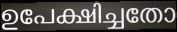
ഉപേക്ഷിച്ചതോ